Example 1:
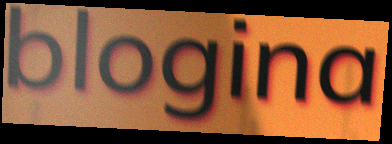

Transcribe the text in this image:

blogina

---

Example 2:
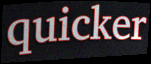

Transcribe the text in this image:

quicker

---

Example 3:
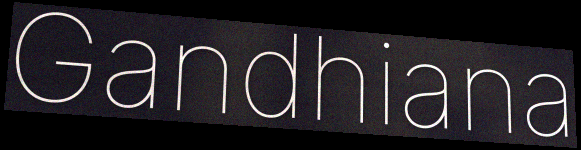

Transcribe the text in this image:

Gandhiana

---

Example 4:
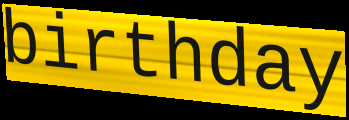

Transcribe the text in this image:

birthday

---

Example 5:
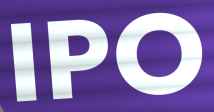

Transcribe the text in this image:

IPO